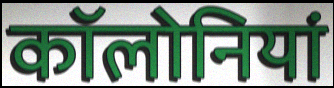
कॉलोनियां